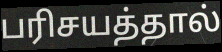
பரிசயத்தால்